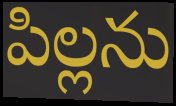
పిల్లను